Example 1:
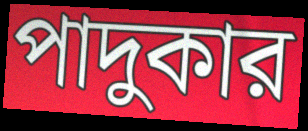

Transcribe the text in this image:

পাদুকার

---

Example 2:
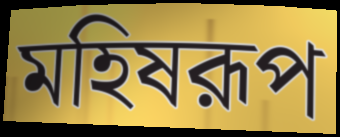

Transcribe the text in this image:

মহিষরূপ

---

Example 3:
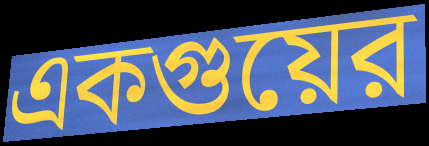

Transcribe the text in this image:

একগুয়ের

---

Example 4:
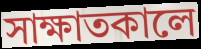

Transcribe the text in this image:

সাক্ষাতকালে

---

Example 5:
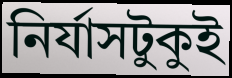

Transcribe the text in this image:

নির্যাসটুকুই